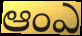
ఆంఎ